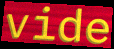
vide